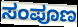
ಸಂಪೂಣ